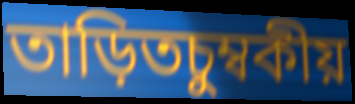
তাড়িতচুম্বকীয়